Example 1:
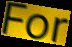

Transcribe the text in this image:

For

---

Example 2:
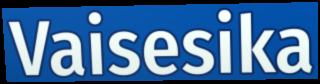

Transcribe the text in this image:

Vaisesika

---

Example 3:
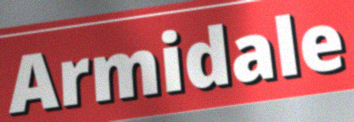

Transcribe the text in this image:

Armidale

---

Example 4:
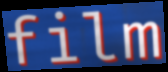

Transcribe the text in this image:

film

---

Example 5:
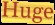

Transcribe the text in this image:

Huge